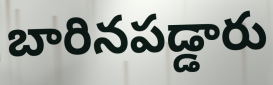
బారినపడ్డారు